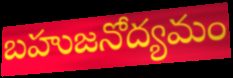
బహుజనోద్యమం